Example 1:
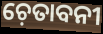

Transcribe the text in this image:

ଚ଼େତାବନୀ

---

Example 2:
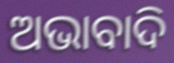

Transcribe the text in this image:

ଅଭାବାଦି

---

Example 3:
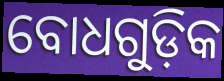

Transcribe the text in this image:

ବୋଧଗୁଡ଼ିକ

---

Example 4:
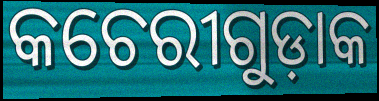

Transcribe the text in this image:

କଚେରୀଗୁଡ଼ାକ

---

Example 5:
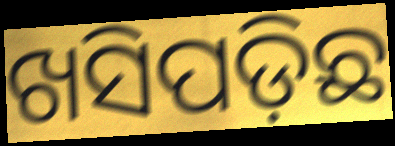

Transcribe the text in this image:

ଖସିପଡ଼ିଛ